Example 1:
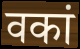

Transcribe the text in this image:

वकां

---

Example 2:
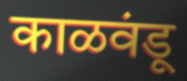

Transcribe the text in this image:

काळवंडू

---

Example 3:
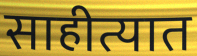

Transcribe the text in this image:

साहीत्यात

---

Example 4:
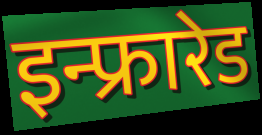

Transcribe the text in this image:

इन्फ्रारेड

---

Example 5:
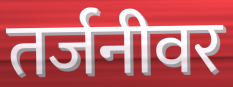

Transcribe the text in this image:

तर्जनीवर